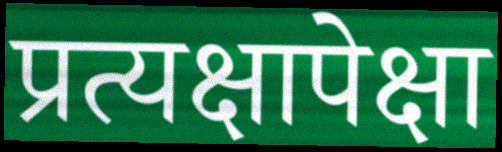
प्रत्यक्षापेक्षा